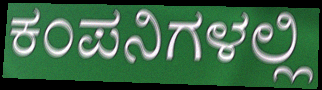
ಕಂಪನಿಗಳಲ್ಲಿ